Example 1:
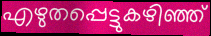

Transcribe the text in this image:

എഴുതപ്പെട്ടുകഴിഞ്ഞ്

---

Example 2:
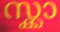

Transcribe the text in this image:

സ്ക്കാ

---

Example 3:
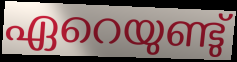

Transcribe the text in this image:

ഏറെയുണ്ടു്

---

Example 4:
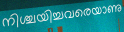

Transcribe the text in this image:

നിശ്ചയിച്ചവരെയാണു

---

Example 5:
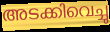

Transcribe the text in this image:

അടക്കിവെച്ചു